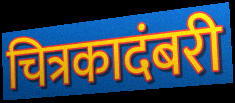
चित्रकादंबरी